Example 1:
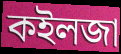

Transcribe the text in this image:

কইলজা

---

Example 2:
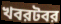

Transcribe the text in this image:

খবরটবর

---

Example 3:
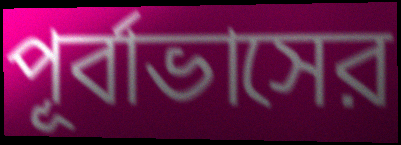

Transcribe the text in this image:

পূর্বাভাসের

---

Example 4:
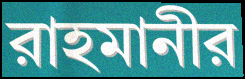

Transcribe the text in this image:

রাহমানীর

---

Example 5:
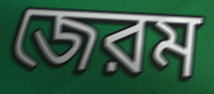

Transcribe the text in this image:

জেরম